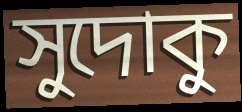
সুদোকু